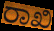
ರಾಖಿ